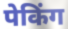
पेकिंग